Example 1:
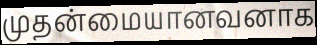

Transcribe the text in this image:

முதன்மையானவனாக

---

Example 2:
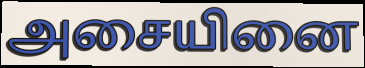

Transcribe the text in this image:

அசையினை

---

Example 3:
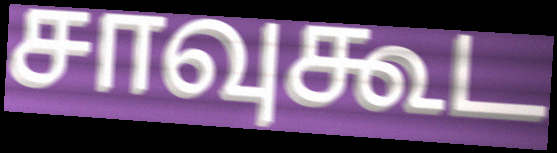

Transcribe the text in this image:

சாவுகூட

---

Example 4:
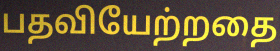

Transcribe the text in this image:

பதவியேற்றதை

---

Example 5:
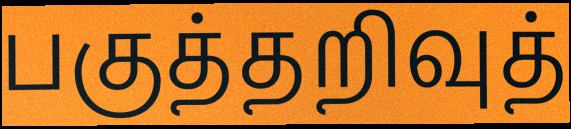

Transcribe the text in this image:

பகுத்தறிவுத்